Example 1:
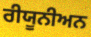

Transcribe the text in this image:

ਰੀਯੂਨੀਅਨ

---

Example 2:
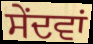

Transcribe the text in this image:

ਸੇਂਦਵਾਂ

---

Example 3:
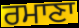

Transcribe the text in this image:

ਰਮਾਣਾ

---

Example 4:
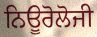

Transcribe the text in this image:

ਨਿਊਰੋਲੋਜੀ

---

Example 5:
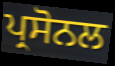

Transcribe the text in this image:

ਪ੍ਰਸੋਨਲ